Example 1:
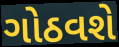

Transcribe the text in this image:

ગોઠવશે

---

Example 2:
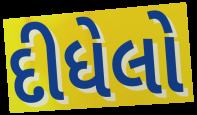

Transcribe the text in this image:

દીધેલો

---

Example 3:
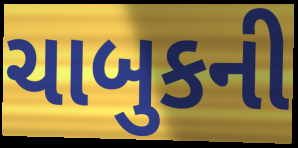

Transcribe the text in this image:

ચાબુકની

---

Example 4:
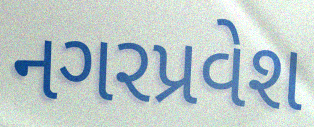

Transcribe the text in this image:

નગરપ્રવેશ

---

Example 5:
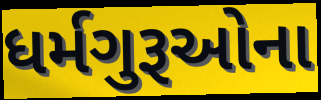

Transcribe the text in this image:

ધર્મગુરૂઓના